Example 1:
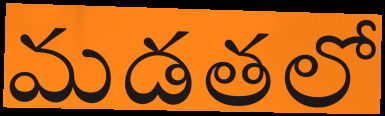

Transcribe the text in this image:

మడతలో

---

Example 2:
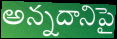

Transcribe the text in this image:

అన్నదానిపై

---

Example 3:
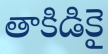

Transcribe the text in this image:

తాకిడికై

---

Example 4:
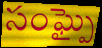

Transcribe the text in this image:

సంఘ్పై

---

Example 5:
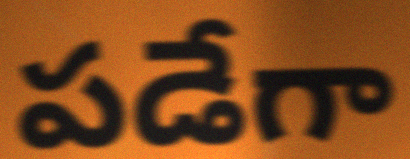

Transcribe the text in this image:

పడేగా